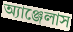
অ্যাঞ্জেলাস